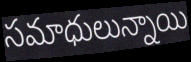
సమాధులున్నాయి